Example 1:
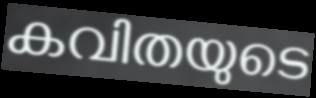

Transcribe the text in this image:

കവിതയുടെ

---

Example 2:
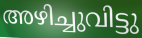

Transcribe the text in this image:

അഴിച്ചുവിട്ടു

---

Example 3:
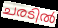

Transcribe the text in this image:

ചരടിൽ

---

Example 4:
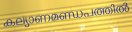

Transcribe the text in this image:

കല്യാണമണ്ഡപത്തിൽ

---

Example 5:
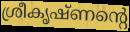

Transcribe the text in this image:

ശ്രീകൃഷ്ണന്റെ